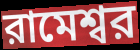
রামেশ্বর